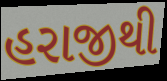
હરાજીથી